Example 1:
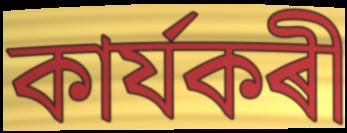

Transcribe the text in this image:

কাৰ্যকৰী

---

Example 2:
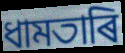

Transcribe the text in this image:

ধামতাৰি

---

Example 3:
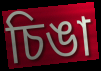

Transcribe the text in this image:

চিঙা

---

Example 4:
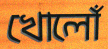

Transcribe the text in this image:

খোলোঁ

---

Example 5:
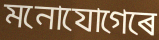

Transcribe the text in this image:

মনোযোগেৰে